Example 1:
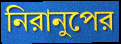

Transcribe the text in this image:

নিরানুপের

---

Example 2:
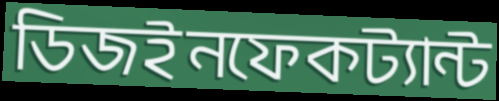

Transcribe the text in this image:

ডিজইনফেকট্যান্ট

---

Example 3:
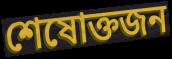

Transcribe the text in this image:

শেষোক্তজন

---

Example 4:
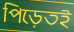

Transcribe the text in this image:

পিড়েতই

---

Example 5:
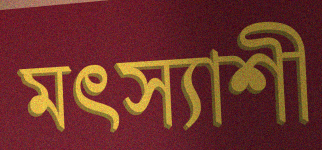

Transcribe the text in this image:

মৎস্যাশী